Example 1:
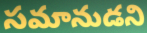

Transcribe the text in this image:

సమానుడని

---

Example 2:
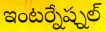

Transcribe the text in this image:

ఇంటర్నేష్నల్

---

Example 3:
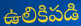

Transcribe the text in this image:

ఉలికిపడి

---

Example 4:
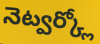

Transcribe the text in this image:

నెట్వర్క్లో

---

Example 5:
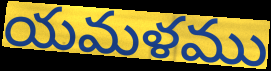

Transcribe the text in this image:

యమళము